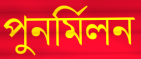
পুনর্মিলন